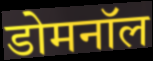
डोमनॉल